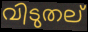
വിടുതല്